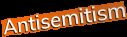
Antisemitism